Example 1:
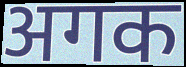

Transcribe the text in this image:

अगक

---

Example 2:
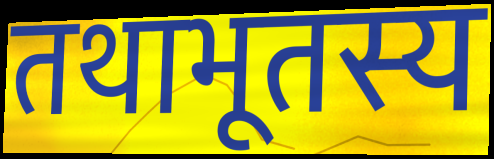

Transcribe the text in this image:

तथाभूतस्य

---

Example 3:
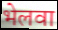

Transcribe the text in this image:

भेलवा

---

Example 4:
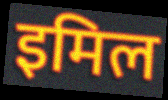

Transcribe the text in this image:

इमिल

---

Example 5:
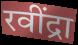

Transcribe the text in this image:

रवींद्रा